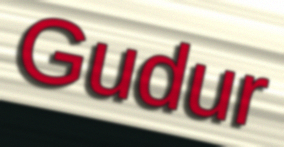
Gudur